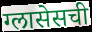
ग्लासेसची